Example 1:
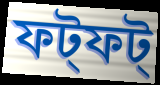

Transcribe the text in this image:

ফট্ফট্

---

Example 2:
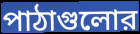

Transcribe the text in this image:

পাঠাগুলোর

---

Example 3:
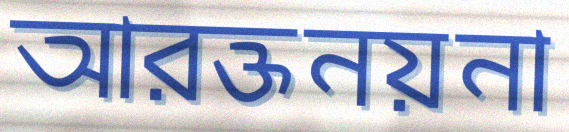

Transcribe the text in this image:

আরক্তনয়না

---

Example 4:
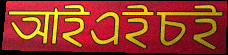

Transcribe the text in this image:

আইএইচই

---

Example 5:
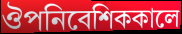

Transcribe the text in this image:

ঔপনিবেশিককালে